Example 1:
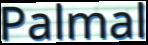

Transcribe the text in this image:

Palmal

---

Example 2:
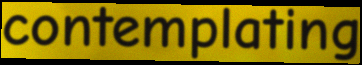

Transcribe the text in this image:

contemplating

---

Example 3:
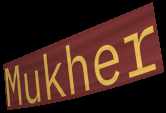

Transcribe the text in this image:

Mukher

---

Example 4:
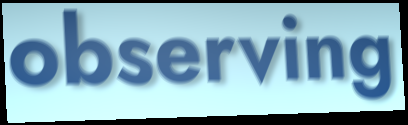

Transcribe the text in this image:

observing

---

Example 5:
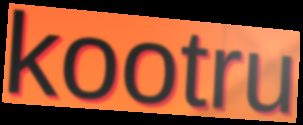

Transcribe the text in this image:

kootru